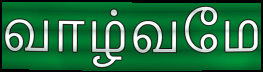
வாழ்வமே